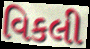
વિકલી